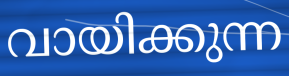
വായിക്കുന്ന